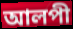
আলপী